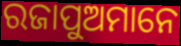
ରଜାପୁଅମାନେ